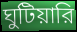
ঘুটিয়ারি